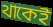
থাকেই